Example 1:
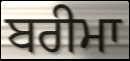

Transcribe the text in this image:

ਬਰੀਮਾ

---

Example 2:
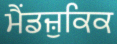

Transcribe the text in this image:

ਮੈਂਡਜ਼ੁਕਿਕ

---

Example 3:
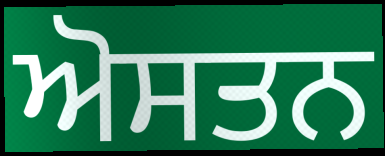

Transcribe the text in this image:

ਅੋਸਤਨ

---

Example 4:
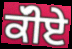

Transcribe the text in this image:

ਕੱੀਏ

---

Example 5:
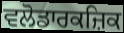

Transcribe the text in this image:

ਵਲੋਡਾਰਕਜ਼ਿਕ